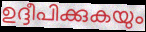
ഉദ്ദീപിക്കുകയും